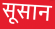
सूसान